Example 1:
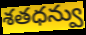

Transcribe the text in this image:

శతధన్వు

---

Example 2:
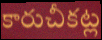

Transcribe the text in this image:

కారుచీకట్ల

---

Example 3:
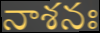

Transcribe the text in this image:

నాశనః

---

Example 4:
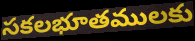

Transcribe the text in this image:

సకలభూతములకు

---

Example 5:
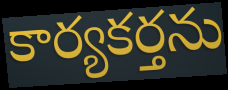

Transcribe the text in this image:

కార్యకర్తను